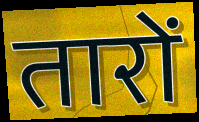
तारों